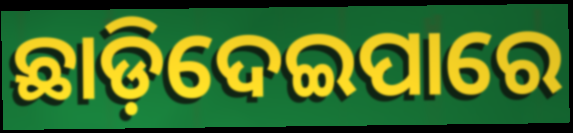
ଛାଡ଼ିଦେଇପାରେ